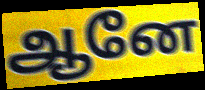
ஆனே